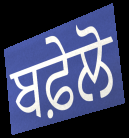
ਬਫ਼ੇਲੋ